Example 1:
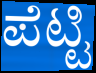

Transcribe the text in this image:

ಪೆಟ್ಟಿ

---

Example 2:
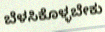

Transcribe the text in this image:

ಬೆಳಸಿಕೊಳ್ಳಬೇಕು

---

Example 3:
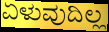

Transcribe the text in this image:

ಏಳುವುದಿಲ್ಲ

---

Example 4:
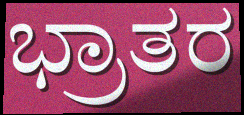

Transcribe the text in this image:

ಭ್ರಾತರ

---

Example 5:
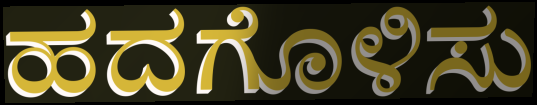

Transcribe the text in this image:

ಹದಗೊಳಿಸು